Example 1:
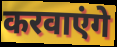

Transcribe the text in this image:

करवाएंगे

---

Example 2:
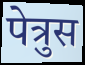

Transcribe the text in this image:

पेत्रुस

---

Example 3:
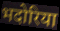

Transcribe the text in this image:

भदोरिया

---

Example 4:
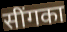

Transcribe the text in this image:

सींगका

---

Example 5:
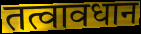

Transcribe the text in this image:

तत्‍वावधान